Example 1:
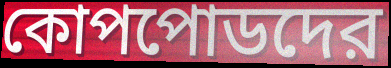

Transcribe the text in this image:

কোপপোডদের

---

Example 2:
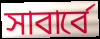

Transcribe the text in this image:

সাবার্বে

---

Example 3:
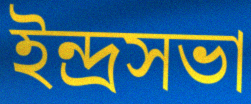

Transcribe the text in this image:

ইন্দ্রসভা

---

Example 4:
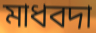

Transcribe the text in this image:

মাধবদা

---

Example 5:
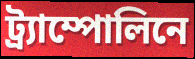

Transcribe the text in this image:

ট্র্যাম্পোলিনে